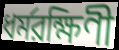
ধর্মরক্ষিণী